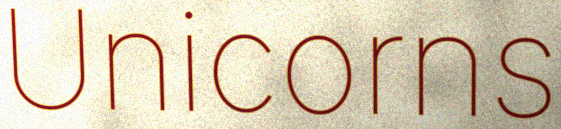
Unicorns